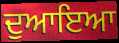
ਦੁਆਇਆ